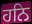
ਹਨਿ